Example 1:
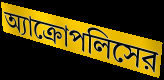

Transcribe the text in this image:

অ্যাক্রোপলিসের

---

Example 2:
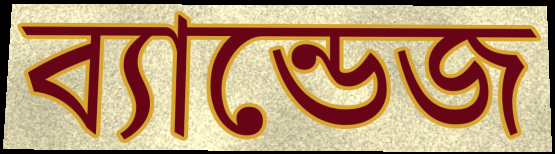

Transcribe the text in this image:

ব্যান্ডেজ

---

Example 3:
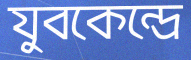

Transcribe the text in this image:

যুবকেন্দ্রে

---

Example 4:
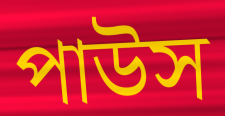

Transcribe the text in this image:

পাউস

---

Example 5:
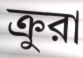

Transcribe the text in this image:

ক্রুরা